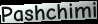
Pashchimi